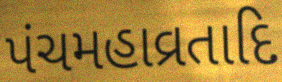
પંચમહાવ્રતાદિ